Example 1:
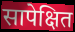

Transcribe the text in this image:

सापेक्षित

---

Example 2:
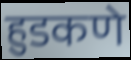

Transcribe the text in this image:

हुडकणे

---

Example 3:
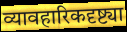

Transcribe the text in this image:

व्यावहारिकदृष्ट्या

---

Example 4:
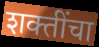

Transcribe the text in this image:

शक्तींचा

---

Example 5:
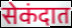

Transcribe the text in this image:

सेकंदात